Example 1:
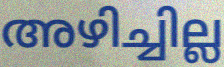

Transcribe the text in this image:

അഴിച്ചില്ല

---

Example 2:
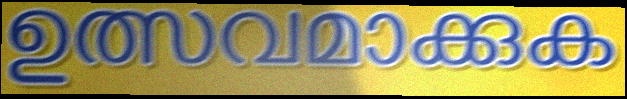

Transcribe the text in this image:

ഉത്സവമാക്കുക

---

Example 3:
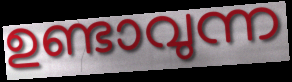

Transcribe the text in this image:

ഉണ്ടാവുന്ന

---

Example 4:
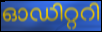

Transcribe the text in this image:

ഓഡിറ്ററി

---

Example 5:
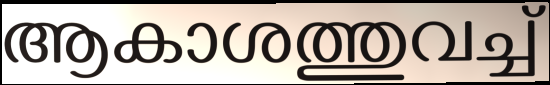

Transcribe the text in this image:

ആകാശത്തുവച്ച്